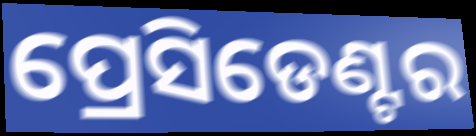
ପ୍ରେସିଡେଣ୍ଟର